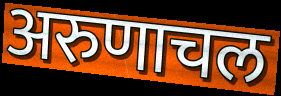
अरुणाचल